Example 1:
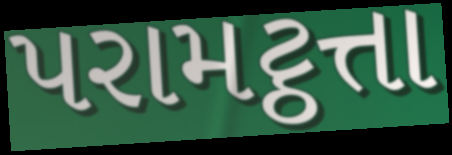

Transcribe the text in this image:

પરામટ્ઠત્તા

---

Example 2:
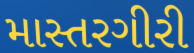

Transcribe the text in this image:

માસ્તરગીરી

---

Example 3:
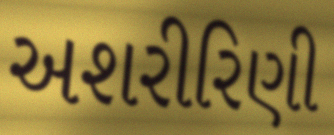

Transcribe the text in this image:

અશરીરિણી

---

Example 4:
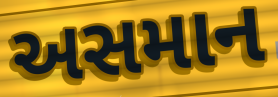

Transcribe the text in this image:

અસમાન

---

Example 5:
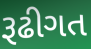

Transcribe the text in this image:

રૂઢીગત